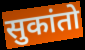
सुकांतो